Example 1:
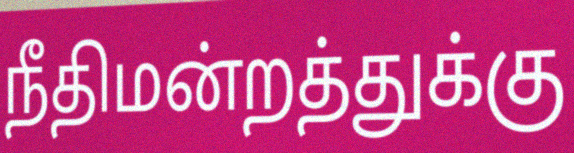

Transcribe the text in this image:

நீதிமன்றத்துக்கு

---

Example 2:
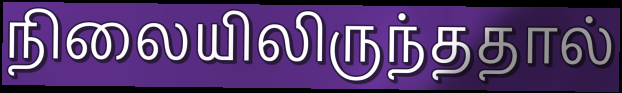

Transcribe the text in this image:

நிலையிலிருந்ததால்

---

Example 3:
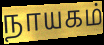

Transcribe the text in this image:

நாயகம்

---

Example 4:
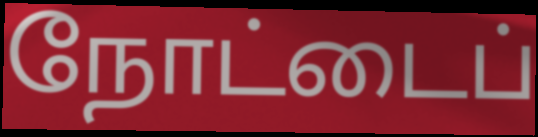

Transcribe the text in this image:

நோட்டைப்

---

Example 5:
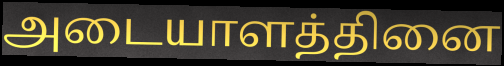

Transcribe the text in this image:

அடையாளத்தினை